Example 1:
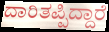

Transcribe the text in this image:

ದಾರಿತಪ್ಪಿದ್ದಾರೆ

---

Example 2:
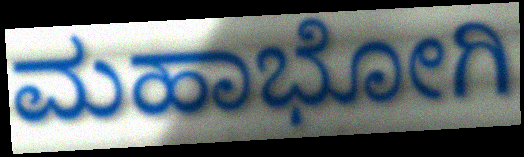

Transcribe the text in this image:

ಮಹಾಭೋಗಿ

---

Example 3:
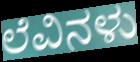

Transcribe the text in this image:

ಲೆವಿನಳು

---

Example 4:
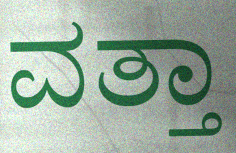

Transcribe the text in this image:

ವತ್ತಾ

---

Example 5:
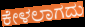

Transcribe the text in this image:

ಕೇಳಲಾಗದು